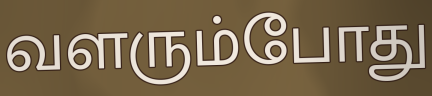
வளரும்போது